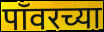
पॉवरच्या